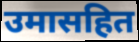
उमासहित